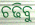
ଚଢିବୁ